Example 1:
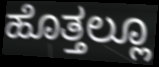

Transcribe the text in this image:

ಹೊತ್ತಲ್ಲೂ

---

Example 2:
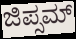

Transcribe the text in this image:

ಜಿಪ್ಸಮ್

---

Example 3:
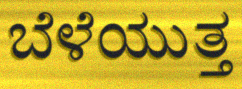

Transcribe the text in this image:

ಬೆಳೆಯುತ್ತ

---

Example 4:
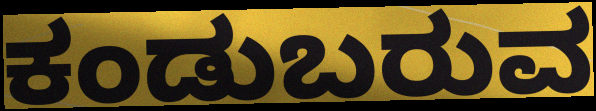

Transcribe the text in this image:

ಕಂಡುಬರುವ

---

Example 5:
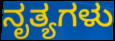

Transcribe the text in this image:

ನೃತ್ಯಗಳು